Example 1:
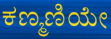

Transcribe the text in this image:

ಕಣ್ಮಣಿಯೇ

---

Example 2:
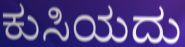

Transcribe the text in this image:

ಕುಸಿಯದು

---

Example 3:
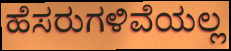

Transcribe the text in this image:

ಹೆಸರುಗಳಿವೆಯಲ್ಲ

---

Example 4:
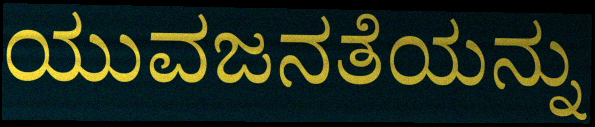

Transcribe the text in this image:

ಯುವಜನತೆಯನ್ನು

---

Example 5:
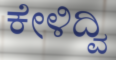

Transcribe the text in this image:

ಕೇಳಿದ್ವಿ